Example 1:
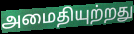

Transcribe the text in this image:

அமைதியுற்றது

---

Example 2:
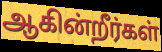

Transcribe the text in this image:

ஆகின்றீர்கள்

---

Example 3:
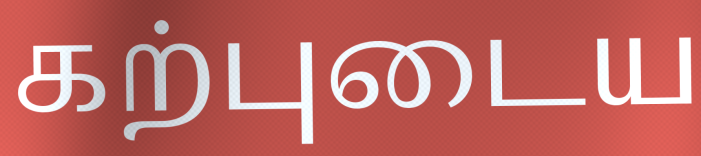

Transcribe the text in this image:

கற்புடைய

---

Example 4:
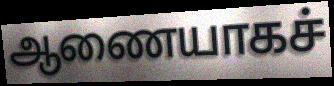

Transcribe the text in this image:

ஆணையாகச்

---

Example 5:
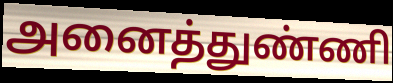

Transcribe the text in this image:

அனைத்துண்ணி